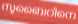
സുബൈറിനെ